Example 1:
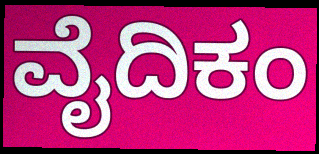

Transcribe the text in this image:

ವೈದಿಕಂ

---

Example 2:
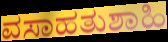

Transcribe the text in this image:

ವಸಾಹತುಶಾಹಿ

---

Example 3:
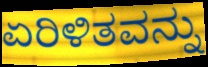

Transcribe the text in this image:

ಏರಿಳಿತವನ್ನು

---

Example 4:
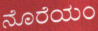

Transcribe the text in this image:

ನೊರೆಯಂ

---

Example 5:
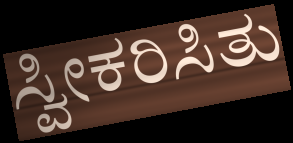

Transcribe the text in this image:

ಸ್ವೀಕರಿಸಿತು